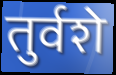
तुर्वशे